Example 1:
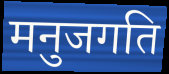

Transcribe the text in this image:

मनुजगति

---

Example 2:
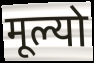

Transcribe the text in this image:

मूल्यो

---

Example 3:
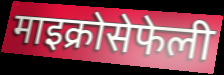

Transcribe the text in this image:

माइक्रोसेफेली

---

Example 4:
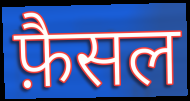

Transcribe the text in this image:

फ़ैसल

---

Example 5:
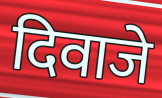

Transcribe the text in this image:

दिवाजे